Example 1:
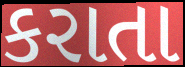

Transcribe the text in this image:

કરાતા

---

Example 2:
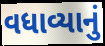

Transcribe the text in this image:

વધાવ્યાનું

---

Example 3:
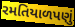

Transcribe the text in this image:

રમતિયાળપણું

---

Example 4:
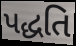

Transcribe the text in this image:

પદ્ધતિ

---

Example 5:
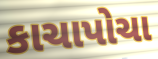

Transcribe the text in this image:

કાચાપોચા